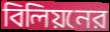
বিলিয়নের